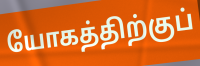
யோகத்திற்குப்